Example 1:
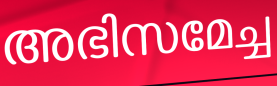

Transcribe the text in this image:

അഭിസമേച്ച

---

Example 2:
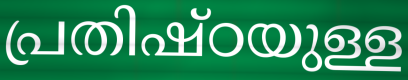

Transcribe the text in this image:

പ്രതിഷ്ഠയുള്ള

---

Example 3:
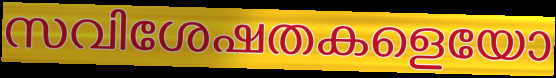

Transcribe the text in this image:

സവിശേഷതകളെയോ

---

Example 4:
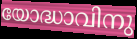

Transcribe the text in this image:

യോദ്ധാവിനു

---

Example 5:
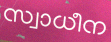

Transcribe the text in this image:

സ്വാധീന